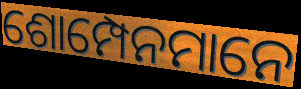
ଶୋମ୍ପେନମାନେ